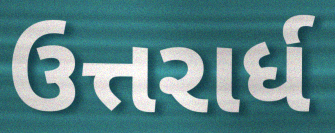
ઉત્તરાર્ધ